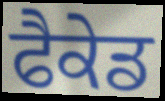
ਫੈਕੇਡ